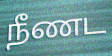
நீணட